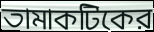
তামাকটিকের